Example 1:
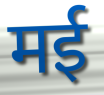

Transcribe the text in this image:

मई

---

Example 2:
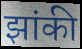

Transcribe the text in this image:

झांकी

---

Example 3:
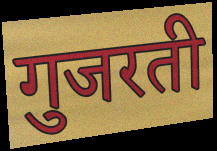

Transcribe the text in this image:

गुजरती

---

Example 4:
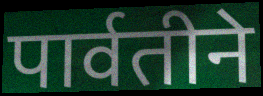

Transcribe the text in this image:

पार्वतीने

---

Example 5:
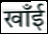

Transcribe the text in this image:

खाँई